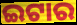
ଇଟାର